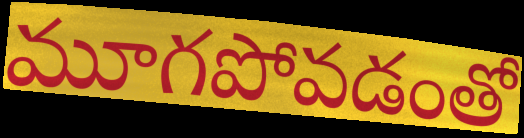
మూగపోవడంతో